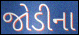
જોડીના